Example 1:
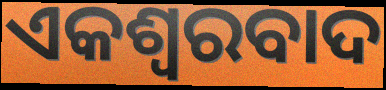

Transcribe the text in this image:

ଏକଶ୍ୱରବାଦ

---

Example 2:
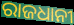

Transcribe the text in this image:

ରାଜଧାନୀ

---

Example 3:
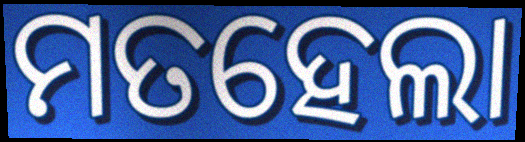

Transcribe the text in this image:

ମତହେଲା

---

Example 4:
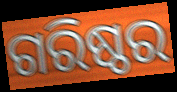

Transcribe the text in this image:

ଗରିଷ୍ଠର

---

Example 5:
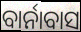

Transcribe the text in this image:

ବାର୍ନାବାସ